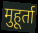
मुहूर्ता